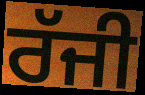
ਰੱਜੀ